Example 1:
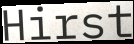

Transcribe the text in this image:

Hirst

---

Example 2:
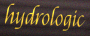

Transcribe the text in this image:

hydrologic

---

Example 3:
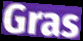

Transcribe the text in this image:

Gras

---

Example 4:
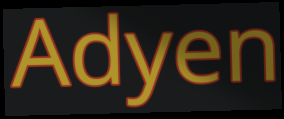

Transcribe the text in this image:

Adyen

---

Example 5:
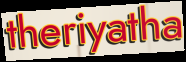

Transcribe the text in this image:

theriyatha